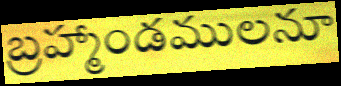
బ్రహ్మాండములనూ